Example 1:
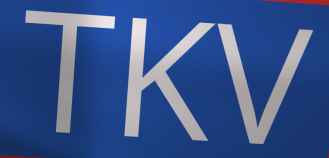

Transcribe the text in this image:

TKV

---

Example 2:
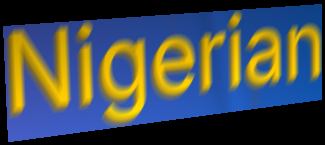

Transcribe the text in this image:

Nigerian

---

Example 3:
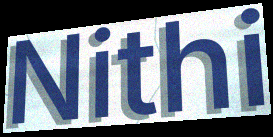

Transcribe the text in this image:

Nithi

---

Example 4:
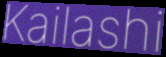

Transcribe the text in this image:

Kailashi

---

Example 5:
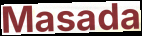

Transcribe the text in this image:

Masada